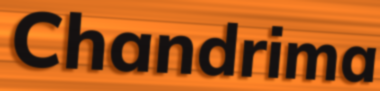
Chandrima